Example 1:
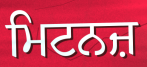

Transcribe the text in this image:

ਮਿਟਨਜ਼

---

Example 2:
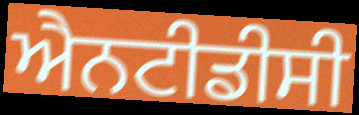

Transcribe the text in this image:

ਐਨਟੀਡੀਸੀ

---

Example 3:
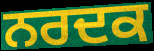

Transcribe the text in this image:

ਨਰਦਕ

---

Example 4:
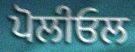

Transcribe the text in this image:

ਪੋਲੀਓਲ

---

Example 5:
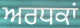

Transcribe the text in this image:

ਅਰਧਕਾਂ